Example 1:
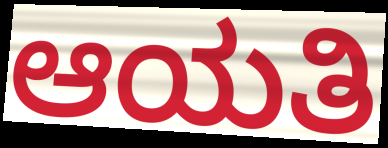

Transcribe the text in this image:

ಆಯತಿ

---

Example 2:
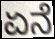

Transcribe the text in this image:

ಏನೆ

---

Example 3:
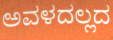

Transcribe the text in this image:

ಅವಳದಲ್ಲದ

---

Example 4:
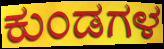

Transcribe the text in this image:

ಕುಂಡಗಳ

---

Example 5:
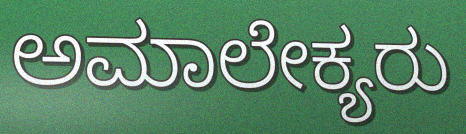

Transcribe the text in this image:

ಅಮಾಲೇಕ್ಯರು